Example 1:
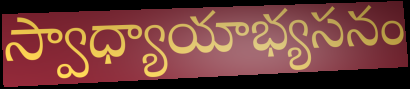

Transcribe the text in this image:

స్వాధ్యాయాభ్యసనం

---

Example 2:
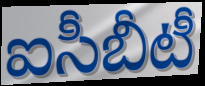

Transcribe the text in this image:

ఐసీబీటీ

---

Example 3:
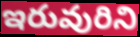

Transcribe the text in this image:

ఇరువురిని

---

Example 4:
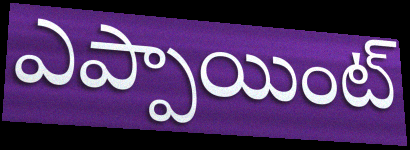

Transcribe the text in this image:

ఎప్పాయింట్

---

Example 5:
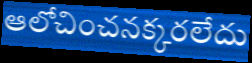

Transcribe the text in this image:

ఆలోచించనక్కరలేదు